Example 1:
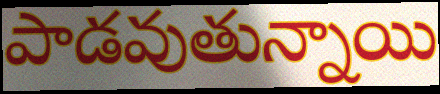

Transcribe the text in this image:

పాడవుతున్నాయి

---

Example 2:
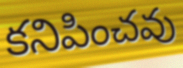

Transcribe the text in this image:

కనిపించవు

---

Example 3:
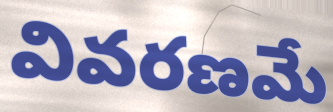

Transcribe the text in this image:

వివరణమే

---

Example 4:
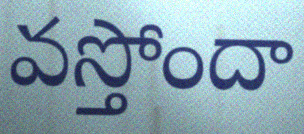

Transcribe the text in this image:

వస్తోందా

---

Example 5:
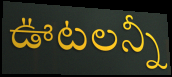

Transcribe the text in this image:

ఊటలన్నీ